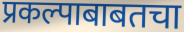
प्रकल्पाबाबतचा